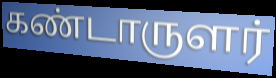
கண்டாருளர்